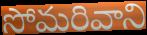
సోమరివాని